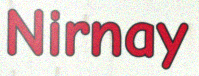
Nirnay